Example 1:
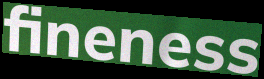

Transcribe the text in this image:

fineness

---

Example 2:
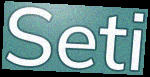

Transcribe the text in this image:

Seti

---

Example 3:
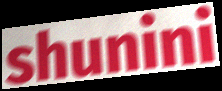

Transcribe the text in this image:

shunini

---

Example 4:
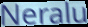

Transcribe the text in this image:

Neralu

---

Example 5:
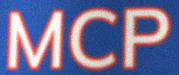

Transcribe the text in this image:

MCP